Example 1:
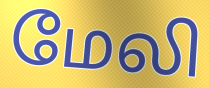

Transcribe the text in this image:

மேலி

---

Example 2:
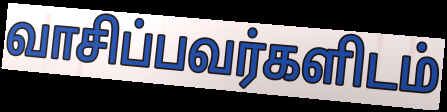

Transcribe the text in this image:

வாசிப்பவர்களிடம்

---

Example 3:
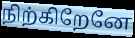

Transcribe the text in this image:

நிற்கிறேனே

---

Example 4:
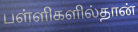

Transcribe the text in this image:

பள்ளிகளில்தான்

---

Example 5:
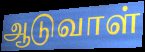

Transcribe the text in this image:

ஆடுவாள்